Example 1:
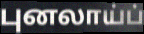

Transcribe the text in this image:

புனலாய்ப்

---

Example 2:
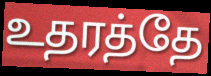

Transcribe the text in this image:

உதரத்தே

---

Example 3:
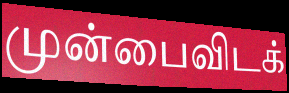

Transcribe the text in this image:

முன்பைவிடக்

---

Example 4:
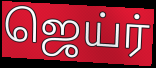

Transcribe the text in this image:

ஜெய்ர்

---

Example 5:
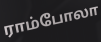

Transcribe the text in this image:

ராம்போலா